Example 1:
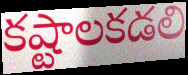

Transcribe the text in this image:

కష్టాలకడలి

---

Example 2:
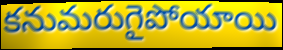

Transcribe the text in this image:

కనుమరుగైపోయాయి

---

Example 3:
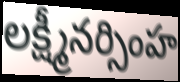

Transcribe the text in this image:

లక్ష్మీనర్సింహ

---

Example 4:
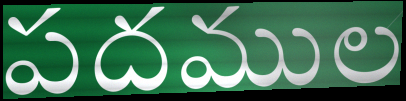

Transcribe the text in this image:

పదముల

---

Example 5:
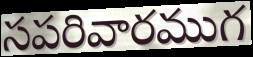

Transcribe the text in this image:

సపరివారముగ